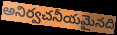
అనిర్వచనీయమైనది